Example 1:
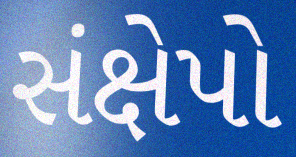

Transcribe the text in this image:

સંક્ષેપો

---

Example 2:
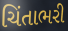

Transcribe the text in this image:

ચિંતાભરી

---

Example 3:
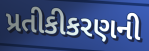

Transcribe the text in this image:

પ્રતીકીકરણની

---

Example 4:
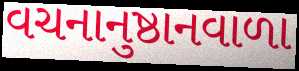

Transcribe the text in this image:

વચનાનુષ્ઠાનવાળા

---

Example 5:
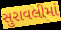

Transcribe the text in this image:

સુરાવલીમાં